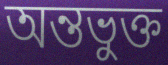
অন্তভুক্ত